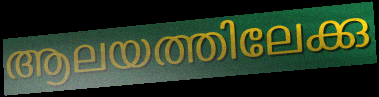
ആലയത്തിലേക്കു